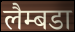
लैम्बडा